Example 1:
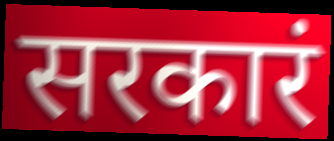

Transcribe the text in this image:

सरकारं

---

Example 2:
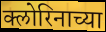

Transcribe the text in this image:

क्लोरिनाच्या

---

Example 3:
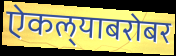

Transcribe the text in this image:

ऐकल्याबरोबर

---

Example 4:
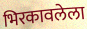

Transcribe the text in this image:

भिरकावलेला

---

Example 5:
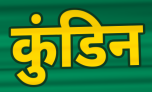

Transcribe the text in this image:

कुंडिन